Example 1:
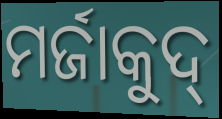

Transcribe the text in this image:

ମର୍ଜାକୁଦ୍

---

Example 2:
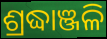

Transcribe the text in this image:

ଶ୍ରଦ୍ଧାଞ୍ଜଳି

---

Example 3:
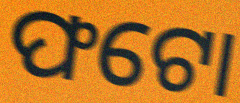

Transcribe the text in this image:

ଫଟୋ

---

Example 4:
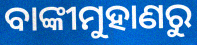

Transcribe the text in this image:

ବାଙ୍କୀମୁହାଣରୁ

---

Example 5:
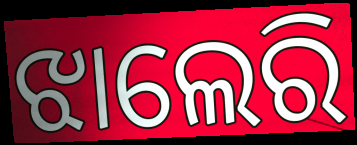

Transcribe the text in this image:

ଝାଲେରି